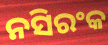
ନସିରଂକ